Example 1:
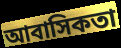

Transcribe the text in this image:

আবাসিকতা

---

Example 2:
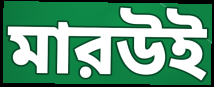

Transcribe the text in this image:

মারউই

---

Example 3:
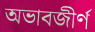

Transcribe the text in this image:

অভাবজীর্ণ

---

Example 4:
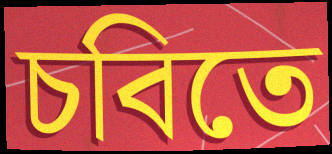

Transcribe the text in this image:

চবিতে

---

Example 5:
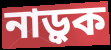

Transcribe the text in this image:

নাড়ুক